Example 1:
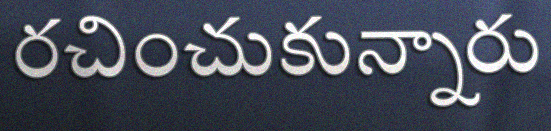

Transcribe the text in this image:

రచించుకున్నారు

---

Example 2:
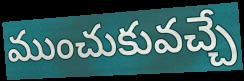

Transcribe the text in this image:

ముంచుకువచ్చే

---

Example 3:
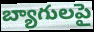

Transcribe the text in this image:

బ్యాగులపై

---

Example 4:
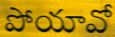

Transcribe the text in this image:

పోయావో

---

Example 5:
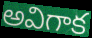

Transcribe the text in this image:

అవిగాక